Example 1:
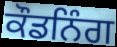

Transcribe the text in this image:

ਕੌਡਨਿੰਗ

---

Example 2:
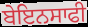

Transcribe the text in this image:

ਬੇਇਨਸਾਫੀ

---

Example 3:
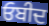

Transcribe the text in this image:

ਓਬੀਦ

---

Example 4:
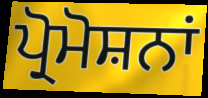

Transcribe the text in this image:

ਪ੍ਰੋਮੋਸ਼ਨਾਂ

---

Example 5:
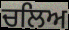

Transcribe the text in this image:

ਚਲਿਅ